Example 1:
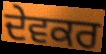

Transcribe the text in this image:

ਦੇਵਕਰ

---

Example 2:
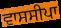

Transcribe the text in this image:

ਵਾਸਸੀਪਾ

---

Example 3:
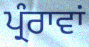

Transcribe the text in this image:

ਪ੍ਰੰਰਾਵਾਂ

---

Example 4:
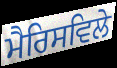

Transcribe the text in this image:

ਮੈਰਿਸਵਿਲੇ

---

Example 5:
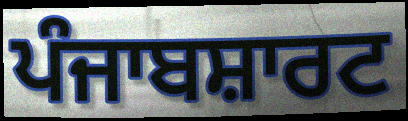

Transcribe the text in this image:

ਪੰਜਾਬਸ਼ਾਰਟ